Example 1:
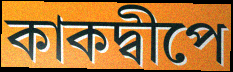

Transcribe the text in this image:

কাকদ্বীপে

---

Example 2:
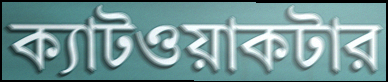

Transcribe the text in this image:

ক্যাটওয়াকটার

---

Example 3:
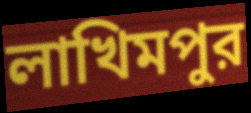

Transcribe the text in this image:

লাখিমপুর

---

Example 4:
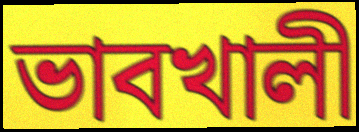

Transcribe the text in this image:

ভাবখালী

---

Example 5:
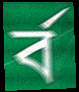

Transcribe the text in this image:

র্ব